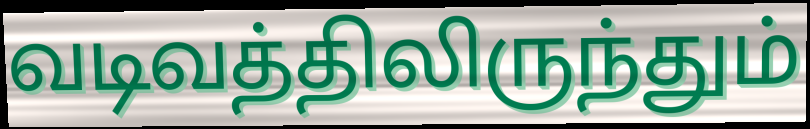
வடிவத்திலிருந்தும்